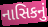
નાસિકનું